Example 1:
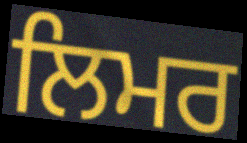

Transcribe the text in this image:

ਲਿਮਰ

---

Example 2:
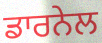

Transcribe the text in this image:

ਡਾਰਨੇਲ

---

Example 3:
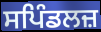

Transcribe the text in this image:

ਸਪਿੰਡਲਜ਼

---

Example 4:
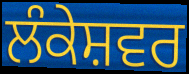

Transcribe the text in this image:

ਲੰਕੇਸ਼ਵਰ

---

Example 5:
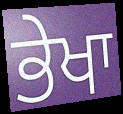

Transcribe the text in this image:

ਭੇਖਾ